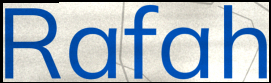
Rafah